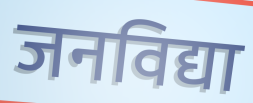
जनविद्या